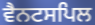
ਵੈਨਟਸਪਿਲ